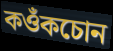
কওঁকচোন